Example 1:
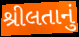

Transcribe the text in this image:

શ્રીલતાનું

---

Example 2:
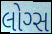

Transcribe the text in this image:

લોગ્સ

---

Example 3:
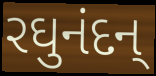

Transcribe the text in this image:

રઘુનંદન્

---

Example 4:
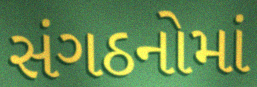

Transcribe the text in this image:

સંગઠનોમાં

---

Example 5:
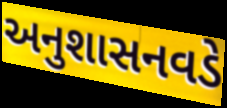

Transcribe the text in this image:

અનુશાસનવડે